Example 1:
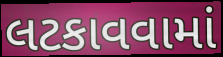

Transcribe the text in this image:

લટકાવવામાં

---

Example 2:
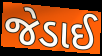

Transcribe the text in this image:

જેડાઈ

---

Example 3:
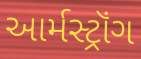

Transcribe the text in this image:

આર્મસ્ટ્રૉંગ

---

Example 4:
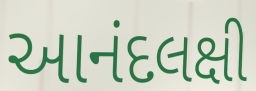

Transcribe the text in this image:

આનંદલક્ષી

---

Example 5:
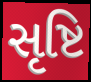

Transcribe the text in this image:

સૃષ્ટિ